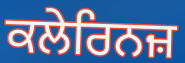
ਕਲੇਰਿਨਜ਼